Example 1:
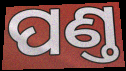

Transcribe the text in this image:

ପଣ୍ତ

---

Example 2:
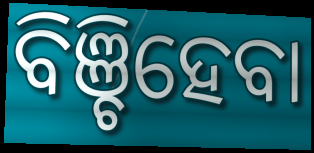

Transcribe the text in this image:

ବିଞ୍ଚିହେବା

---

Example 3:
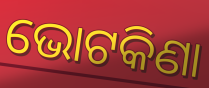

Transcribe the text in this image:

ଭୋଟକିଣା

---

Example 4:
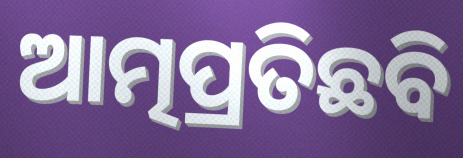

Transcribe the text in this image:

ଆତ୍ମପ୍ରତିଛବି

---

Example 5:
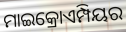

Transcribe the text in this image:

ମାଇକ୍ରୋଏମ୍ପିୟର